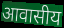
आवासीय